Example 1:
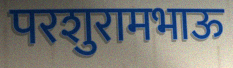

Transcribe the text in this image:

परशुरामभाऊ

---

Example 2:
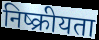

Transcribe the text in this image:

निष्क्रीयता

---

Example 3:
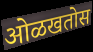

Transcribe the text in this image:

ओळखतोस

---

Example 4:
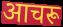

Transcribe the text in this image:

आचरू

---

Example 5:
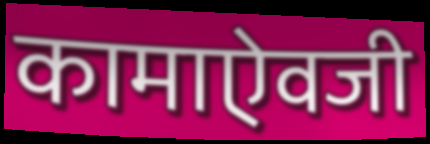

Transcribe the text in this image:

कामाऐवजी